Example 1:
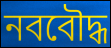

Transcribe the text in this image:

নববৌদ্ধ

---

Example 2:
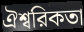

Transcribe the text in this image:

ঐশ্বরিকতা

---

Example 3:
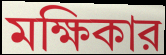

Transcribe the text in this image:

মক্ষিকার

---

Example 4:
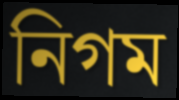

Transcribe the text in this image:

নিগম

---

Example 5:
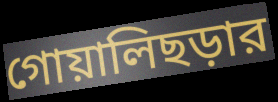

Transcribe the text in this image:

গোয়ালিছড়ার